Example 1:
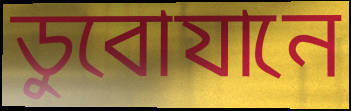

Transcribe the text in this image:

ডুবোযানে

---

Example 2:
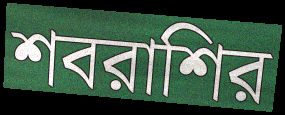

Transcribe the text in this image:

শবরাশির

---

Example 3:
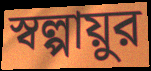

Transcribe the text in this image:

স্বল্পায়ুর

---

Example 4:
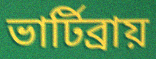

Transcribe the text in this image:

ভার্টিব্রায়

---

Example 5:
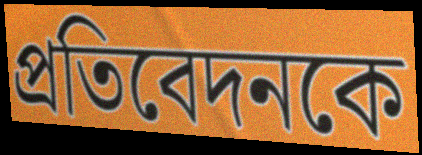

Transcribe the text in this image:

প্রতিবেদনকে